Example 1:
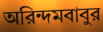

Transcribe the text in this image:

অরিন্দমবাবুর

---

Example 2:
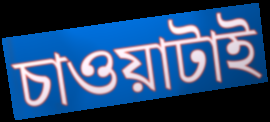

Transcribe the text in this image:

চাওয়াটাই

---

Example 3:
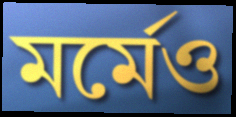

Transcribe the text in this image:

মর্মেও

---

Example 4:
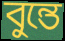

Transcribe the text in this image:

বুন্তে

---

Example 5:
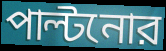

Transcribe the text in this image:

পাল্টনোর